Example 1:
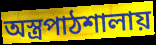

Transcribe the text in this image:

অস্ত্রপাঠশালায়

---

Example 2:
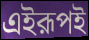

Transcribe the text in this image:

এইরূপই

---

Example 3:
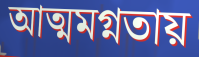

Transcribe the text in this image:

আত্মমগ্নতায়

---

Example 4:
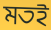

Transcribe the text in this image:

মতই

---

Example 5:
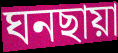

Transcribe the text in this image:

ঘনছায়া